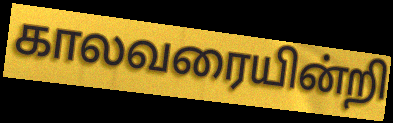
காலவரையின்றி